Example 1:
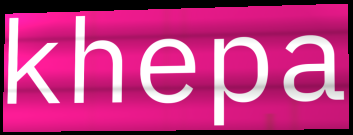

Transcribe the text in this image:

khepa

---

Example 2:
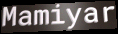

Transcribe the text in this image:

Mamiyar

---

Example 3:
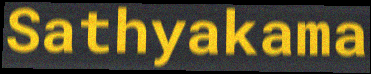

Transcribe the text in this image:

Sathyakama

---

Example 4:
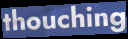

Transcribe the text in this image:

thouching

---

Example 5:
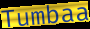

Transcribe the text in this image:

Tumbaa